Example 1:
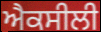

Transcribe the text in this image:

ਐਕਸੀਲੀ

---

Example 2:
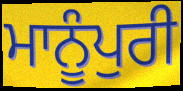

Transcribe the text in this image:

ਮਾਨੂੰਪੁਰੀ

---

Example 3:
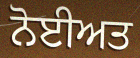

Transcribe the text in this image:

ਨੋਈਅਤ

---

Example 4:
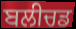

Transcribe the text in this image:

ਬਲੀਚਡ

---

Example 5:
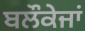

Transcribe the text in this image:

ਬਲੌਕੇਜਾਂ